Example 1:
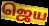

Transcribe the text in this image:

ஜெய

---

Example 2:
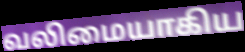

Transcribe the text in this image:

வலிமையாகிய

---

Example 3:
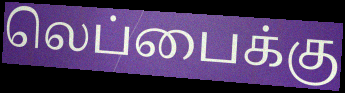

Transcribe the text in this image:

லெப்பைக்கு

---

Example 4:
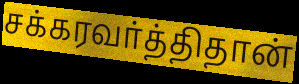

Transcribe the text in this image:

சக்கரவர்த்திதான்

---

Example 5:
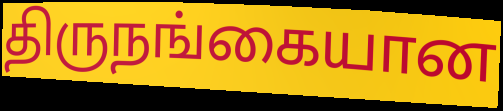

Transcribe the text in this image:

திருநங்கையான